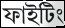
ফাইটিং